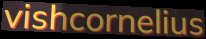
vishcornelius